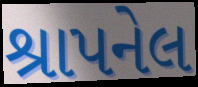
શ્રાપનેલ